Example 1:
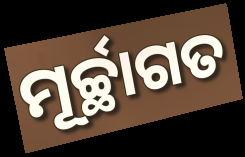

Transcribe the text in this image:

ମୂର୍ଚ୍ଛାଗତ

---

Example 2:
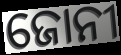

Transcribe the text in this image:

ଜୋନୀ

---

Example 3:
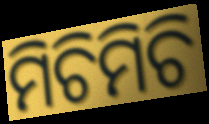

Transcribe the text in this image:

ମିଚିମିଚି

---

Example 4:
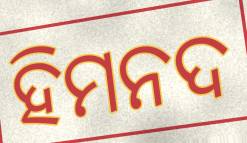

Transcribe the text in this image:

ହିମନଦ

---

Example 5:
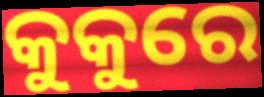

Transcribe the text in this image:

କୁକୁରେ